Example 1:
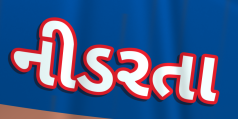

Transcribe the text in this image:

નીડરતા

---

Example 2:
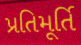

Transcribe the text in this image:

પ્રતિમૂર્તિ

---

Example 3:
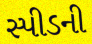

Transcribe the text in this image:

સ્પીડની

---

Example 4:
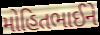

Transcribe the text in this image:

મોહિતભાઈને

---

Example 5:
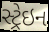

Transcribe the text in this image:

સ્ટ્રેઇન